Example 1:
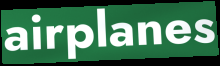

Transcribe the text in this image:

airplanes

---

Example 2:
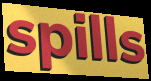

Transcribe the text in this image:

spills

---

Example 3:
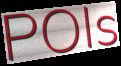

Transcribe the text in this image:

POIs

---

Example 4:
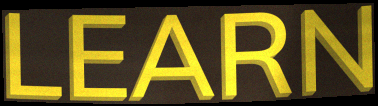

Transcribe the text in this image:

LEARN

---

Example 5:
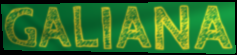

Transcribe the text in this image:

GALIANA